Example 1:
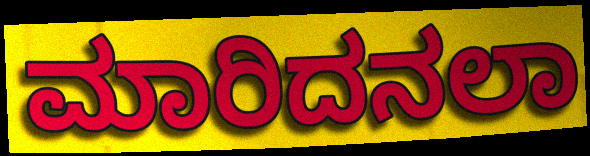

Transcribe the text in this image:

ಮಾರಿದನಲಾ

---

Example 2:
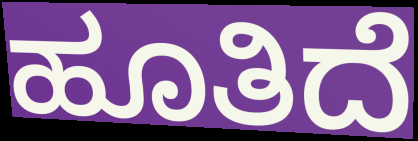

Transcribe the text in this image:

ಹೂತಿದೆ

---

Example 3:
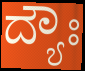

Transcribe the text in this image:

ದ್ಯೌಃ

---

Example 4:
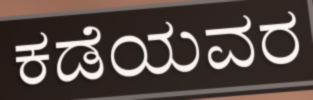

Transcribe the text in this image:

ಕಡೆಯವರ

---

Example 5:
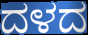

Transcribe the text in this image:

ದಳದ